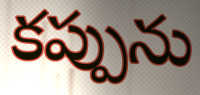
కప్పును